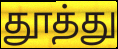
தூத்து